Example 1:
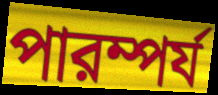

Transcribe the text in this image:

পারম্পর্য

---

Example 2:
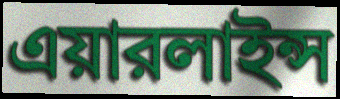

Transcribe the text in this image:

এয়ারলাইন্স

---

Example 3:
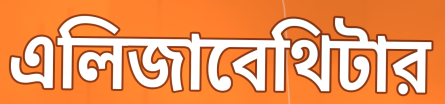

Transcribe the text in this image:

এলিজাবেথিটার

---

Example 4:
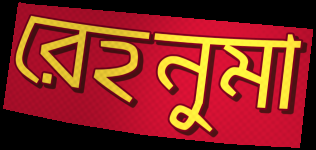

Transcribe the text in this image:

রেহনুমা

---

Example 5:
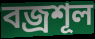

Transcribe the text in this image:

বজ্রশূল